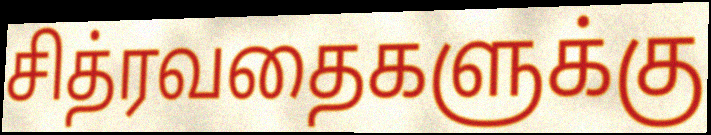
சித்ரவதைகளுக்கு